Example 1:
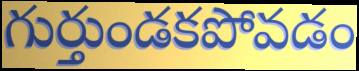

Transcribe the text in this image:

గుర్తుండకపోవడం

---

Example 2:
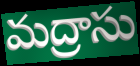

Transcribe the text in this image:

మద్రాసు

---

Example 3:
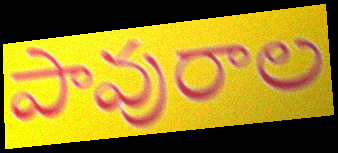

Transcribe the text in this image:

పావురాల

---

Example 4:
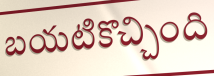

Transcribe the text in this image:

బయటికొచ్చింది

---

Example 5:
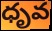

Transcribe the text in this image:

ధృవ